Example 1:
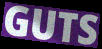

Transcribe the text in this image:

GUTS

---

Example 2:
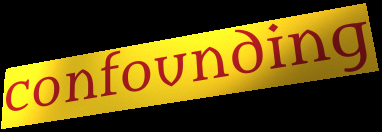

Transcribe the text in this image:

confounding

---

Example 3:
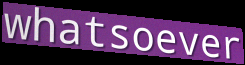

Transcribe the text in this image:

whatsoever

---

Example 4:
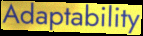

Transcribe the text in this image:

Adaptability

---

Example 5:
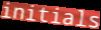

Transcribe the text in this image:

initials